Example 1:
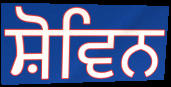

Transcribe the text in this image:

ਸ਼ੋਵਿਨ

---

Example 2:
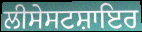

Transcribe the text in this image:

ਲੀਸੇਸਟਸ਼ਾਇਰ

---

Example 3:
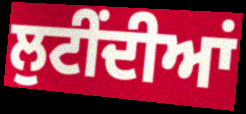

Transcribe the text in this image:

ਲੁਟੀਂਦੀਆਂ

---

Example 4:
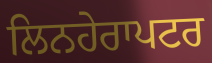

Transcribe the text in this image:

ਲਿਨਹੇਰਾਪਟਰ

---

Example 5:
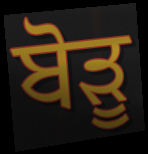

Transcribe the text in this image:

ਬੋੜੂ